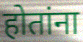
होतांना